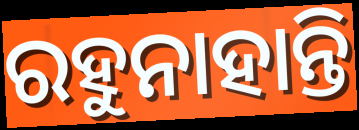
ରହୁନାହାନ୍ତି